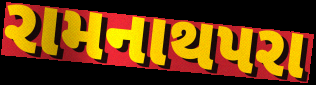
રામનાથપરા